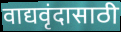
वाद्यवृंदासाठी